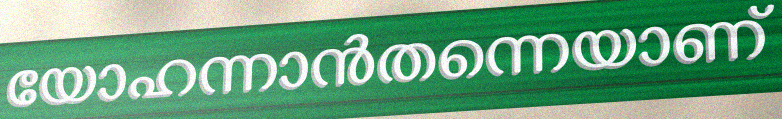
യോഹന്നാൻതന്നെയാണ്